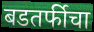
बडतर्फीचा